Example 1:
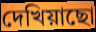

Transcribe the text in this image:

দেখিয়াছো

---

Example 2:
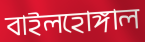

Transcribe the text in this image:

বাইলহোঙ্গাল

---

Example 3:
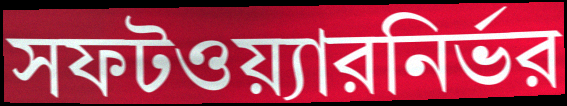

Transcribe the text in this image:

সফটওয়্যারনির্ভর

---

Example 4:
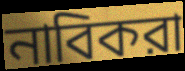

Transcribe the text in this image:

নাবিকরা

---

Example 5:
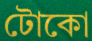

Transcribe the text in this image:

টোকো